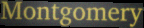
Montgomery